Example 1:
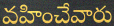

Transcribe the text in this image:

వహించేవారు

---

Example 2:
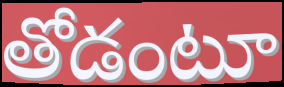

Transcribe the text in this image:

తోడంటూ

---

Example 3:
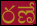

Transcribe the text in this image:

రణే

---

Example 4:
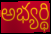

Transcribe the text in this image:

అభ్యర్థి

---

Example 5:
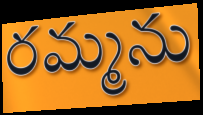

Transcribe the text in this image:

రమ్మను